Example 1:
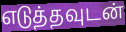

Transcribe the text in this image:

எடுத்தவுடன்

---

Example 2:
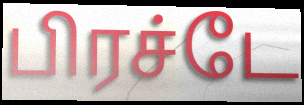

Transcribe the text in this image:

பிரச்டே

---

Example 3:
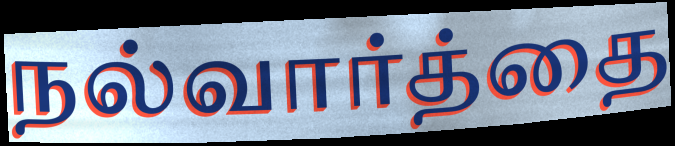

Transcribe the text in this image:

நல்வார்த்தை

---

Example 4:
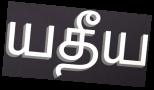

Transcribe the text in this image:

யதீய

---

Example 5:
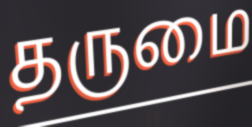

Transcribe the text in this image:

தருமை